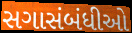
સગાસંબંધીઓ